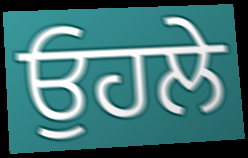
ਓੁਹਲੇ